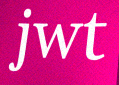
jwt